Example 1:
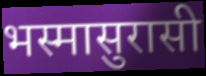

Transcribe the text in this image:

भस्मासुरासी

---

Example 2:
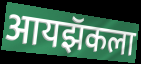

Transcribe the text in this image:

आयझॅकला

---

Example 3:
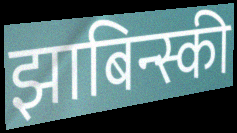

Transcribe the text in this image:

झाबिन्स्की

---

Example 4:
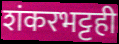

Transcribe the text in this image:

शंकरभट्टही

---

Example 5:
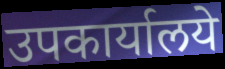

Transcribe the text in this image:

उपकार्यालये